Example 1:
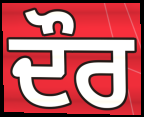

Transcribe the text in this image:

ਦੌਰ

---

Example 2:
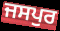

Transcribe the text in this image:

ਜਸਪੁਰ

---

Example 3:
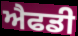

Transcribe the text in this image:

ਐਫਡੀ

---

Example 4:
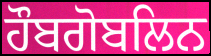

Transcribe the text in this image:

ਹੌਬਗੋਬਲਿਨ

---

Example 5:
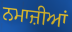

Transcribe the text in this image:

ਨਮਾਜ਼ੀਆਂ